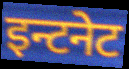
इन्टनेट